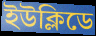
ইউক্লিডে